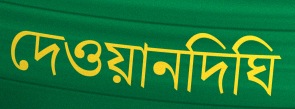
দেওয়ানদিঘি